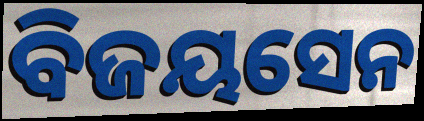
ବିଜୟସେନ